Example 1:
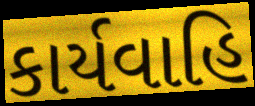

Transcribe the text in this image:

કાર્યવાહિ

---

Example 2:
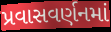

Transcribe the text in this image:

પ્રવાસવર્ણનમાં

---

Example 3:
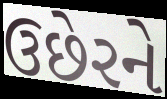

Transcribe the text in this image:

ઉછેરને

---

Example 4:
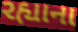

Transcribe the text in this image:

રહ્યાના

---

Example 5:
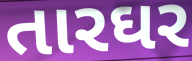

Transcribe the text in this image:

તારઘર